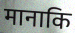
मानाकि